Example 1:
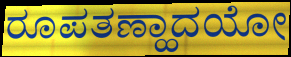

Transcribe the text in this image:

ರೂಪತಣ್ಹಾದಯೋ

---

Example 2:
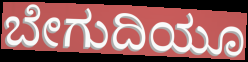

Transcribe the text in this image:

ಬೇಗುದಿಯೂ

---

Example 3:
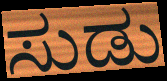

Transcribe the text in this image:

ಸುಡು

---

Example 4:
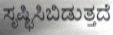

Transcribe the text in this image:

ಸೃಷ್ಟಿಸಿಬಿಡುತ್ತದೆ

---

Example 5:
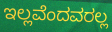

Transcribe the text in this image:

ಇಲ್ಲವೆಂದವರಲ್ಲ